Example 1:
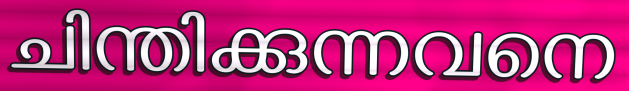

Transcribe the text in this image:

ചിന്തിക്കുന്നവനെ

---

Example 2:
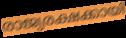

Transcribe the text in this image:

രാജ്യരക്ഷക്കായി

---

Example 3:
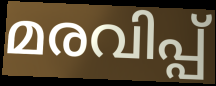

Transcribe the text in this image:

മരവിപ്പ്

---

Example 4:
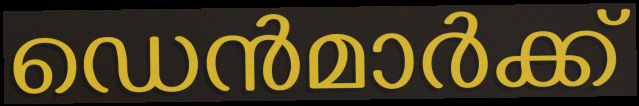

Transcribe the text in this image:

ഡെൻമാർക്ക്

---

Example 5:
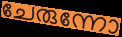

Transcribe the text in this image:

ചേരുന്നോ